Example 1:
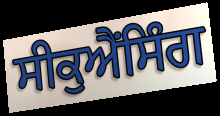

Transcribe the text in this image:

ਸੀਕੁਐਂਸਿੰਗ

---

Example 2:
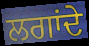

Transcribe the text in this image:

ਲਗਾਂਦੇ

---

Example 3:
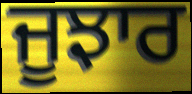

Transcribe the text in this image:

ਜੂਝਾਰ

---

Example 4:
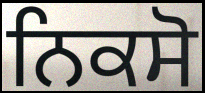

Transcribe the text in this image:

ਨਿਕਸੋ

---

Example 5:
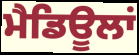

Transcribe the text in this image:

ਮੈਡਿਊਲਾਂ